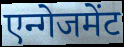
एन्गेजमेंट